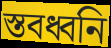
স্তবধ্বনি